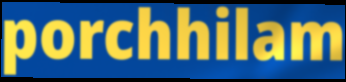
porchhilam